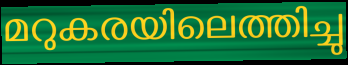
മറുകരയിലെത്തിച്ചു